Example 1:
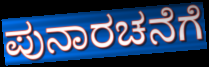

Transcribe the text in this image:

ಪುನಾರಚನೆಗೆ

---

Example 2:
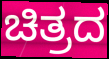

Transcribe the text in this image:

ಚಿತ್ರದ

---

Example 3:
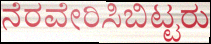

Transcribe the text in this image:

ನೆರವೇರಿಸಿಬಿಟ್ಟರು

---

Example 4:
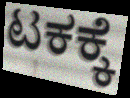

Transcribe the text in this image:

ಟಕಕ್ಕೆ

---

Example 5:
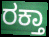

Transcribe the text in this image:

ರಕ್ತಾ